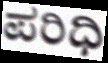
ಪರಿಧಿ